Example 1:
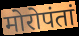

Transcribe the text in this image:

मोरोपंतां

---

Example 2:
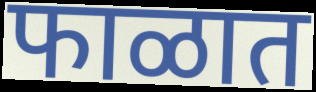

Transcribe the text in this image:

फाळात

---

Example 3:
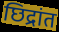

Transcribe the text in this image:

छिद्रांत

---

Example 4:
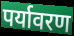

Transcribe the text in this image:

पर्यावरण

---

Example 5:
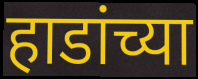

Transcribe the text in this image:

हाडांच्या